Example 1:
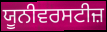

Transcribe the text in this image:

ਯੂਨੀਵਰਸਟੀਜ਼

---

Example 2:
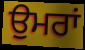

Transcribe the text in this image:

ਉੁਮਰਾਂ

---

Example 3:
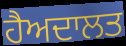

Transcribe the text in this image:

ਹੈਅਦਾਲਤ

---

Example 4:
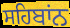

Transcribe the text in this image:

ਸਹਿਬਾਂਨ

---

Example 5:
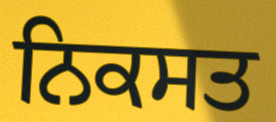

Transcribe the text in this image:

ਨਿਕਸਤ